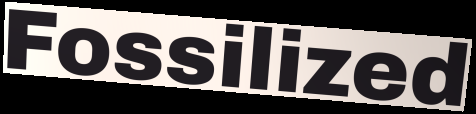
Fossilized